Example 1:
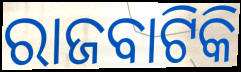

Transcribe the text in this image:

ରାଜବାଟିକି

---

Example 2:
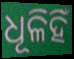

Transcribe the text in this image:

ଧୂଳିହିଁ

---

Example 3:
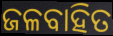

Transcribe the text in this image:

ଜଳବାହିତ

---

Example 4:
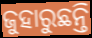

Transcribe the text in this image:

ଜୁହାରୁଛନ୍ତି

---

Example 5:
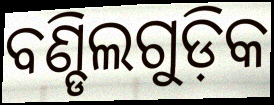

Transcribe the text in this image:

ବଣ୍ଡିଲଗୁଡ଼ିକ